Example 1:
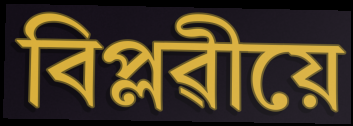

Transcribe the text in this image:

বিপ্লৱীয়ে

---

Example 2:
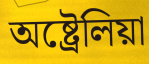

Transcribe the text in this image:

অষ্ট্ৰেলিয়া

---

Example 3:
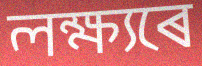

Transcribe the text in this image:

লক্ষ্যৰে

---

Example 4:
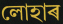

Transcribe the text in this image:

লোহাৰ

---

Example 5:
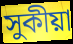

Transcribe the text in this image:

সুকীয়া